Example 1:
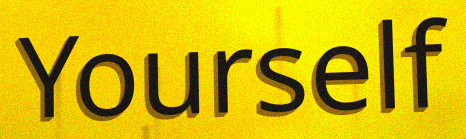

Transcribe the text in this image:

Yourself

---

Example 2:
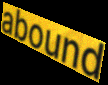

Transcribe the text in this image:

abound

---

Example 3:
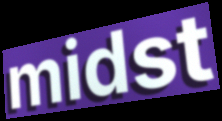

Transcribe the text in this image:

midst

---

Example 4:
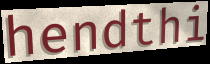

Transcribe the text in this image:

hendthi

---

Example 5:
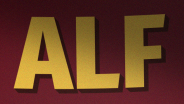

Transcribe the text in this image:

ALF